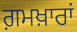
ਗ਼ਮਖ਼ਾਰਾਂ